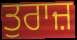
ਤੁਰਾਜ਼